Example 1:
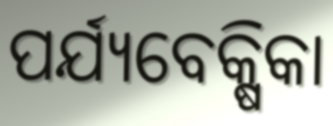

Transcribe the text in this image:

ପର୍ଯ୍ୟବେକ୍ଷିକା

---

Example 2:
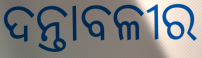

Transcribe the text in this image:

ଦନ୍ତାବଳୀର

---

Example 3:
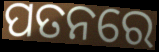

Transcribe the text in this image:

ପତନରେ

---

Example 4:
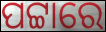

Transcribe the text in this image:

ପଟ୍ଟାରେ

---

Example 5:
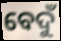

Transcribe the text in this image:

ବେଦୁଁ